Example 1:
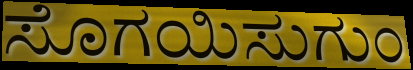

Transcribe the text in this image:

ಸೊಗಯಿಸುಗುಂ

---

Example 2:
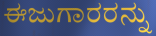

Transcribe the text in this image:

ಈಜುಗಾರರನ್ನು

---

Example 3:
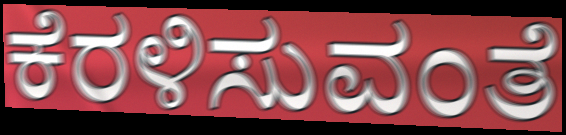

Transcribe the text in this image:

ಕೆರಳಿಸುವಂತೆ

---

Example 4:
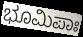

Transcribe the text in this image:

ಭೂಮಿಪಾಃ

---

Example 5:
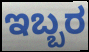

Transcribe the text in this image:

ಇಬ್ಬರ